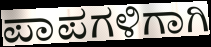
ಪಾಪಗಳಿಗಾಗಿ